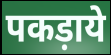
पकड़ाये